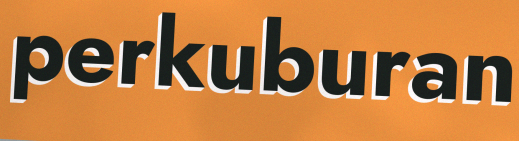
perkuburan